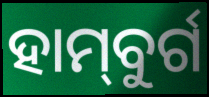
ହାମ୍‌ବୁର୍ଗ